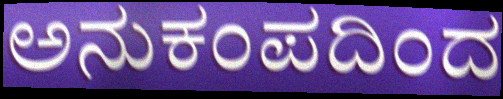
ಅನುಕಂಪದಿಂದ